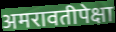
अमरावतीपेक्षा